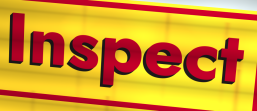
Inspect